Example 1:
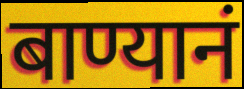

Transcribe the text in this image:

बाण्यानं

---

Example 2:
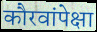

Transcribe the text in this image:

कौरवांपेक्षा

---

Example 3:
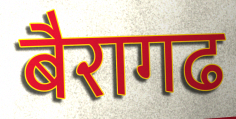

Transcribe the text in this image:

बैरागढ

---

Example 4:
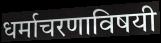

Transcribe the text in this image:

धर्माचरणाविषयी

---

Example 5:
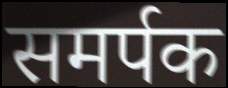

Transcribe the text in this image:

समर्पक